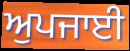
ਅੁਪਜਾਈ